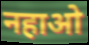
नहाओ